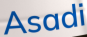
Asadi